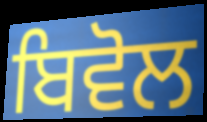
ਬਿਵੋਲ